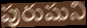
పురుషుని